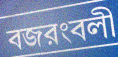
বজরংবলী